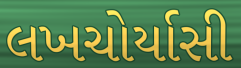
લખચોર્યાસી